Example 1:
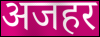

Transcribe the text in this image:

अजहर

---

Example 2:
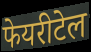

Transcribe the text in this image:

फेयरीटेल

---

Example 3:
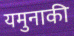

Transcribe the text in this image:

यमुनाकी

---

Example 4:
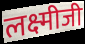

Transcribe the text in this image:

लक्ष्मीजी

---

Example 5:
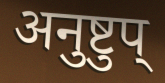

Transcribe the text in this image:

अनुष्टुप्